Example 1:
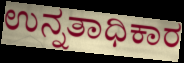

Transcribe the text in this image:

ಉನ್ನತಾಧಿಕಾರ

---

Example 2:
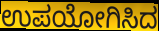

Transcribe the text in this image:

ಉಪಯೋಗಿಸಿದ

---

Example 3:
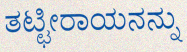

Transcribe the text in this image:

ತಟ್ಟೀರಾಯನನ್ನು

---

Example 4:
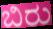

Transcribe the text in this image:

ಬಿರು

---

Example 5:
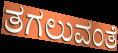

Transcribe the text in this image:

ತಗಲುವಂತೆ